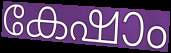
കേഷാം